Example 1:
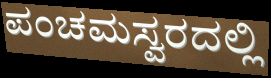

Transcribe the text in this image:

ಪಂಚಮಸ್ವರದಲ್ಲಿ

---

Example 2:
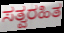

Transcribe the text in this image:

ಸತ್ವರಹಿತ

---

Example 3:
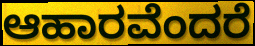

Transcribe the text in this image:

ಆಹಾರವೆಂದರೆ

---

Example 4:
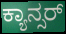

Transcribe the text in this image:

ಕ್ಯಾನ್ಸರ್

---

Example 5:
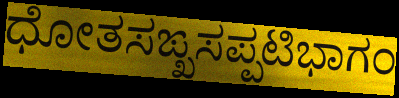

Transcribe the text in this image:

ಧೋತಸಙ್ಖಸಪ್ಪಟಿಭಾಗಂ